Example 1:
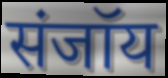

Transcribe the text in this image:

संजॉय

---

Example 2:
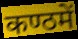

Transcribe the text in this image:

कण्ठमें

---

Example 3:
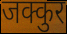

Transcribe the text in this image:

जक्कुर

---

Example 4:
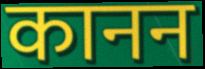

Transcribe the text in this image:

कानन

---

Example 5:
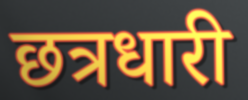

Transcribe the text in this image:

छत्रधारी